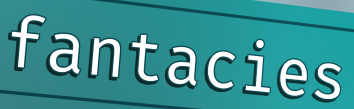
fantacies